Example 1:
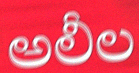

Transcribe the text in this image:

అలీల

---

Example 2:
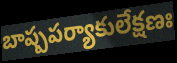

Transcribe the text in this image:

బాష్పపర్యాకులేక్షణః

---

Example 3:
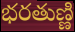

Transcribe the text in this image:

భరతుణ్ణి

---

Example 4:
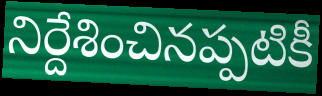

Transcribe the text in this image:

నిర్దేశించినప్పటికీ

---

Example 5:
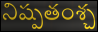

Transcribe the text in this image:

నిష్పతంశ్చ